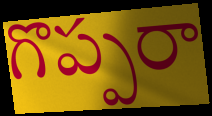
గొప్పరా